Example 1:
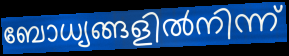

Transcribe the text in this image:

ബോധ്യങ്ങളിൽനിന്ന്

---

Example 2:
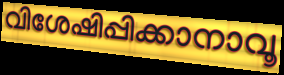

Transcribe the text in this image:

വിശേഷിപ്പിക്കാനാവൂ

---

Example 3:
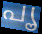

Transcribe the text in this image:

പൄ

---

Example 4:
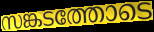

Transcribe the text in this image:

സങ്കടത്തോടെ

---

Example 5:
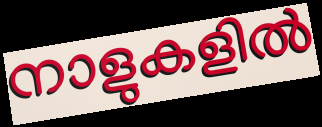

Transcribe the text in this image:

നാളുകളിൽ